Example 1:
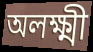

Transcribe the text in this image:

অলক্ষ্মী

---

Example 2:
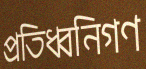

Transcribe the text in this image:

প্রতিধ্বনিগণ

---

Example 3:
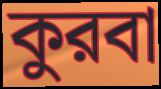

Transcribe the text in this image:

কুরবা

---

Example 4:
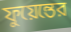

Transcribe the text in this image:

ফুয়েন্তের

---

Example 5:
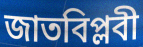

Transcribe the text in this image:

জাতবিপ্লবী